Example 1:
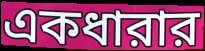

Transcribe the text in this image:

একধারার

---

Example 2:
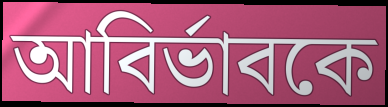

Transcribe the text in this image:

আবির্ভাবকে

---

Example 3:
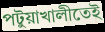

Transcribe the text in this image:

পটুয়াখালীতেই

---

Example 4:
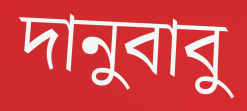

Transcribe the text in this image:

দানুবাবু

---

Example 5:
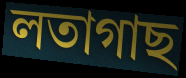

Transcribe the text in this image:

লতাগাছ